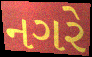
નગરે